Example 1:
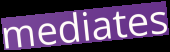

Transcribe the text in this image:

mediates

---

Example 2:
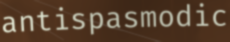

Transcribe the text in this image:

antispasmodic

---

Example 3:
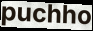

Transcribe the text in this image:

puchho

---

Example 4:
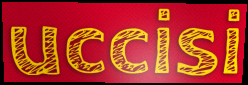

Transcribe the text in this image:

uccisi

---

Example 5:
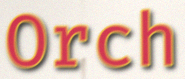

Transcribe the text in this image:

Orch